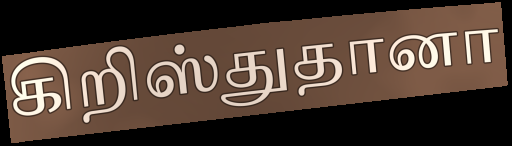
கிறிஸ்துதானா